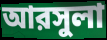
আরসুলা